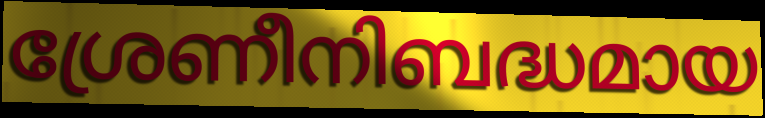
ശ്രേണീനിബദ്ധമായ